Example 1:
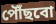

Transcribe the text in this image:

পৌঁছবো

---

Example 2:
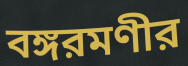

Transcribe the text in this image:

বঙ্গরমণীর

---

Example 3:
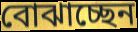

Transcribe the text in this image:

বোঝাচ্ছেন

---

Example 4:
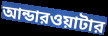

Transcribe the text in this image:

আন্ডারওয়াটার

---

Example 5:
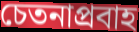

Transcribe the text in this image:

চেতনাপ্রবাহ